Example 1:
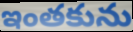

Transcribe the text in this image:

ఇంతకును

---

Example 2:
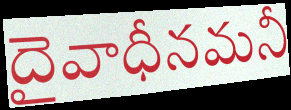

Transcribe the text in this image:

దైవాధీనమనీ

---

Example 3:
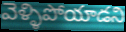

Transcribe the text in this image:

వెళ్ళిపోయాడని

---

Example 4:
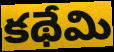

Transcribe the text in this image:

కథేమి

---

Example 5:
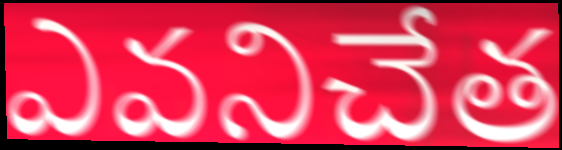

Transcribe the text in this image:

ఎవనిచేత